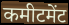
कमीटमेंट